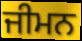
ਜੀਮਨ